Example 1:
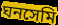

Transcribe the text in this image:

ঘনসেমি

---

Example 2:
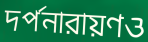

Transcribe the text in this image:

দর্পনারায়ণও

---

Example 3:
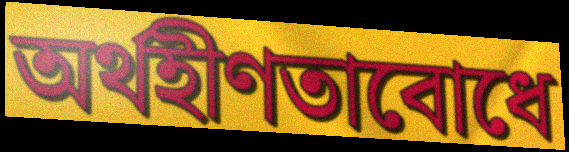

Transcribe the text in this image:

অর্থহীণতাবোধে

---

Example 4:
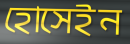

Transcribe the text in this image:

হোসেইন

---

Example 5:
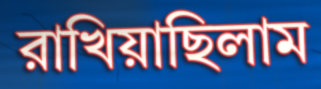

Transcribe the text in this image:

রাখিয়াছিলাম